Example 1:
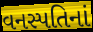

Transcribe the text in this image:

વનસ્પતિનાં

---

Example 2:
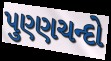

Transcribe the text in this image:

પુણ્ણચન્દો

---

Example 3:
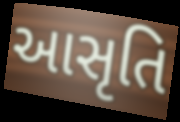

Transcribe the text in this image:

આસૃતિ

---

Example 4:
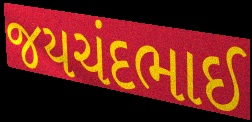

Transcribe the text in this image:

જયચંદભાઈ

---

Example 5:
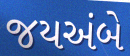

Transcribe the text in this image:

જયઅંબે